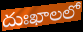
దుఃఖాలలో